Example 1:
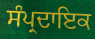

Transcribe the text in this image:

ਸੰਪ੍ਰਦਾਇਕ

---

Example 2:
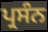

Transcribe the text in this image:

ਪ੍ਰਸੰਨ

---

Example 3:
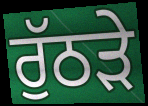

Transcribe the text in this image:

ਰੁੱਠੜੇ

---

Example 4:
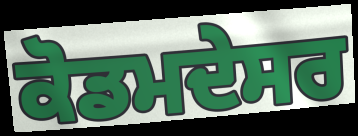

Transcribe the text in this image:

ਕੋਡਮਦੇਸਰ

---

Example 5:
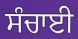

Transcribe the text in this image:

ਸੰਚਾਈ